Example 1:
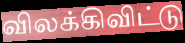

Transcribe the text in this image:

விலக்கிவிட்டு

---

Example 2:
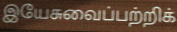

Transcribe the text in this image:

இயேசுவைப்பற்றிக்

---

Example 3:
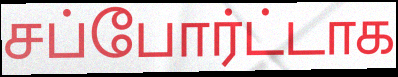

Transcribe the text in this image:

சப்போர்ட்டாக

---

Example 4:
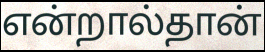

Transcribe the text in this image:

என்றால்தான்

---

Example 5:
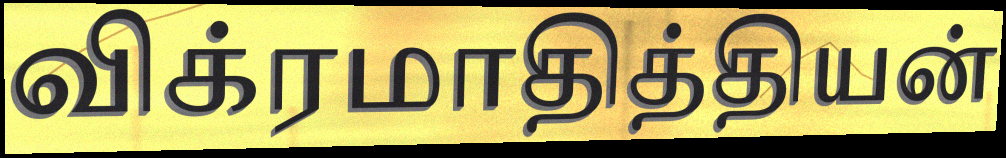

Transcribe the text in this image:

விக்ரமாதித்தியன்